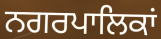
ਨਗਰਪਾਲਿਕਾਂ